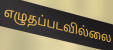
எழுதப்படவில்லை